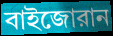
বাইজোরান